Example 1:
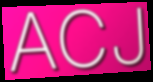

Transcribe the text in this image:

ACJ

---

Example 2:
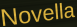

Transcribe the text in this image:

Novella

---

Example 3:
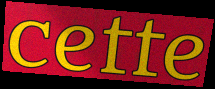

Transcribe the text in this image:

cette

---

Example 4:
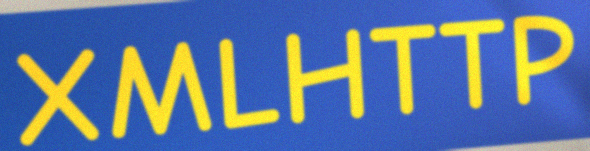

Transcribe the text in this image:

XMLHTTP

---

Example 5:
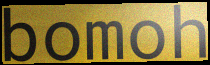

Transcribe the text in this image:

bomoh